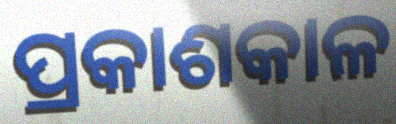
ପ୍ରକାଶକାଳ